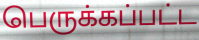
பெருக்கப்பட்ட